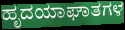
ಹೃದಯಾಘಾತಗಳ